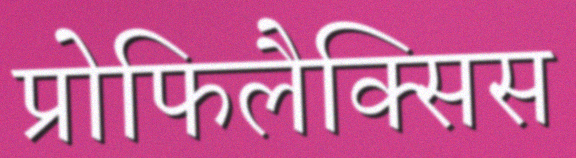
प्रोफिलैक्सिस